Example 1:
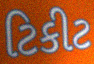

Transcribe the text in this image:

ટિકીટ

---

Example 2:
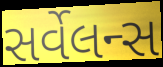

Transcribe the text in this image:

સર્વેલન્સ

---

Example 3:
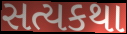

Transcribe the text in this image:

સત્યકથા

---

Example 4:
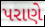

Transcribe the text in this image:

પરાણે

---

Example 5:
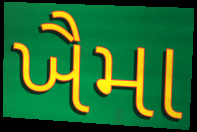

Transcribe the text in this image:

ખૈમા